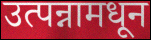
उत्पन्नामधून